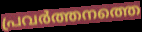
പ്രവർത്തനത്തെ